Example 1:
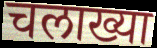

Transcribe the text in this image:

चलाख्या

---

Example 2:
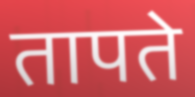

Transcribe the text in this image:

तापते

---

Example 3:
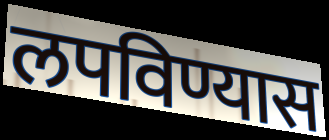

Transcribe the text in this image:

लपविण्यास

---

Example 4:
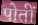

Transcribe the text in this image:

पोतीं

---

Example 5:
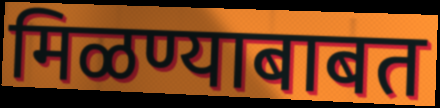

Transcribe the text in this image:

मिळण्याबाबत